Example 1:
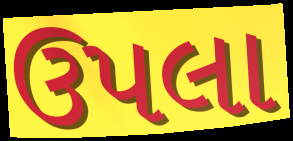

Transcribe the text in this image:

ઉપલા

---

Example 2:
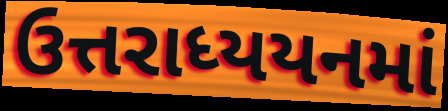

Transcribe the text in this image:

ઉત્તરાધ્યયનમાં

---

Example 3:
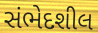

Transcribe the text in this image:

સંભેદશીલ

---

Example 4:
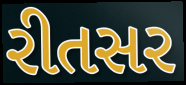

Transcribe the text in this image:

રીતસર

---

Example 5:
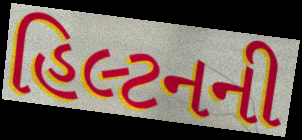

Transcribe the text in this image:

હિલ્ટનની